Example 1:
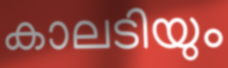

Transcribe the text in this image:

കാലടിയും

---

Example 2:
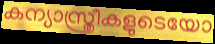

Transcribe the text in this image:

കന്യാസ്ത്രീകളുടെയോ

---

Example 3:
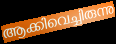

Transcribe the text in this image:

ആക്കിവെച്ചിരുന്നു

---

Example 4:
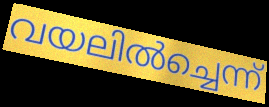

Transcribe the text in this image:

വയലിൽച്ചെന്ന്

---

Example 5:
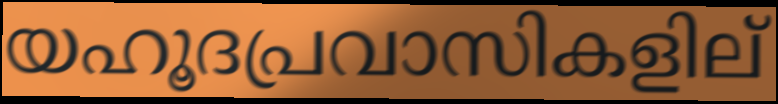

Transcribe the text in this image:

യഹൂദപ്രവാസികളില്